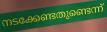
നടക്കേണ്ടതുണ്ടെന്ന്